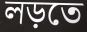
লড়তে